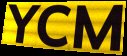
YCM